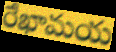
రేఖామయ